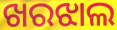
ଖରଝାଲ